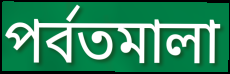
পর্বতমালা